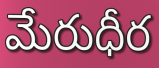
మేరుధీర